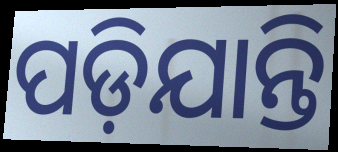
ପଡ଼ିଯାନ୍ତି